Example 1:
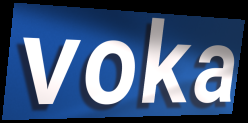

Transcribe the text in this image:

voka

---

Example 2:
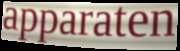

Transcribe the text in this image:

apparaten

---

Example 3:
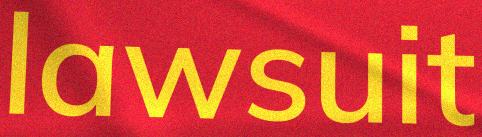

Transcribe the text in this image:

lawsuit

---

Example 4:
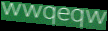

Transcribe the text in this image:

wwqeqw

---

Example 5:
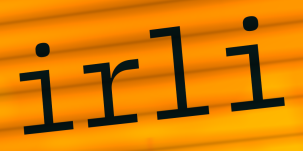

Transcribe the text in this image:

irli